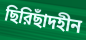
ছিরিছাঁদহীন